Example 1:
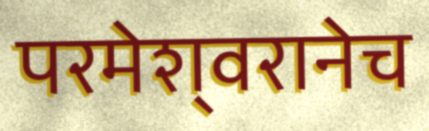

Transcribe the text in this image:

परमेश्वरानेच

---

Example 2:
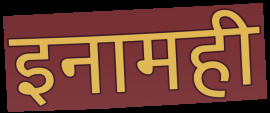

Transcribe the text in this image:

इनामही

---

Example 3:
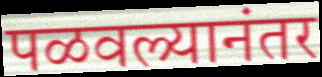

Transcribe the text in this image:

पळवल्यानंतर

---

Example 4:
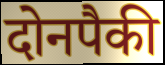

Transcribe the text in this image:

दोनपैकी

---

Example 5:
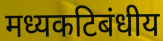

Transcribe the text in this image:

मध्यकटिबंधीय